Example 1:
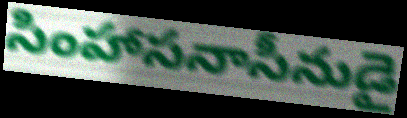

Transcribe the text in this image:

సింహాసనాసీనుడై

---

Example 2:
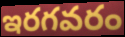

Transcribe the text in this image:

ఇరగవరం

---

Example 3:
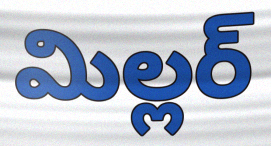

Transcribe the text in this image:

మిల్లర్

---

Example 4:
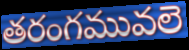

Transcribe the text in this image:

తరంగమువలె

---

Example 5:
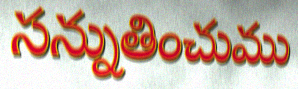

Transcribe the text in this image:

సన్నుతించుము